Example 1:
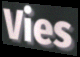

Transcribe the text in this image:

Vies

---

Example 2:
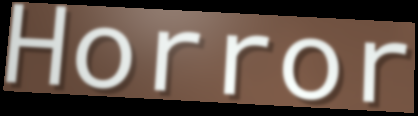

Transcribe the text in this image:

Horror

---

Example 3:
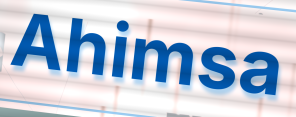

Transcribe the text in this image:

Ahimsa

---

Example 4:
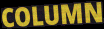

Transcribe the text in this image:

COLUMN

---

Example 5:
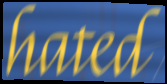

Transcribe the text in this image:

hated